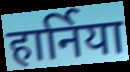
हार्निया